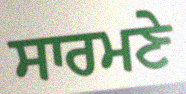
ਸਾਰਮਣੇ